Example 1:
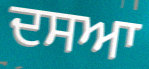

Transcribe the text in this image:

ਦਸਆ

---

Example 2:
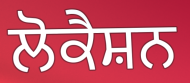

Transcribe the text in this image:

ਲੋਕੈਸ਼ਨ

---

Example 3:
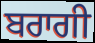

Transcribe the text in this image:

ਬਰਾਗੀ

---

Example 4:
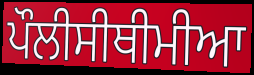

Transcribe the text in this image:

ਪੌਲੀਸੀਥੀਮੀਆ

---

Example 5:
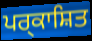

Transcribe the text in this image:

ਪਰ੍ਕਾਸ਼ਿਤ